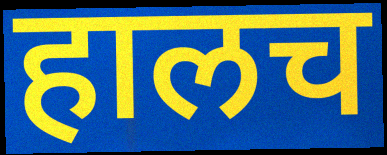
हालच